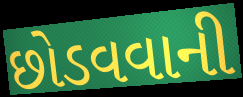
છોડવવાની